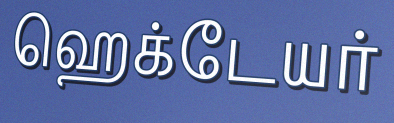
ஹெக்டேயர்